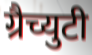
ग्रैच्युटी